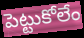
పెట్టుకోలేం